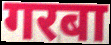
गरबा